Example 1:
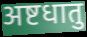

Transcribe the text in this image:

अष्टधातु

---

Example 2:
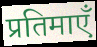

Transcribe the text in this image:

प्रतिमाएँ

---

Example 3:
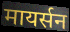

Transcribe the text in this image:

मायर्सन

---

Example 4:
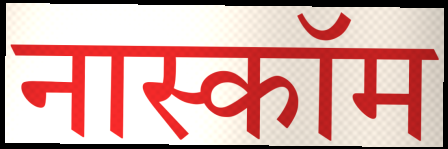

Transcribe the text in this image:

नास्कॉम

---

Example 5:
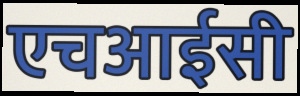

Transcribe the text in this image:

एचआईसी